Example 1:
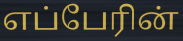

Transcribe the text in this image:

எப்பேரின்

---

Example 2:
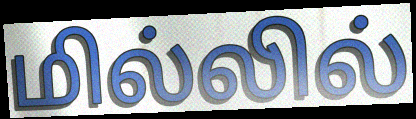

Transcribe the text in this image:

மில்லில்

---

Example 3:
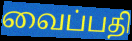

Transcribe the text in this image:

வைப்பதி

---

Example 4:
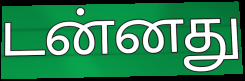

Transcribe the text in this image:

டன்னது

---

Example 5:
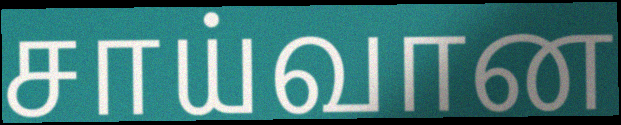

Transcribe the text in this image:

சாய்வான